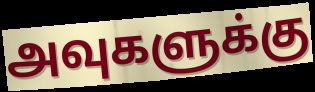
அவுகளுக்கு